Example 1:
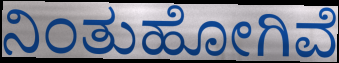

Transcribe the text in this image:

ನಿಂತುಹೋಗಿವೆ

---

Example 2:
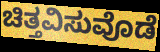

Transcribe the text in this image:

ಚಿತ್ತವಿಸುವೊಡೆ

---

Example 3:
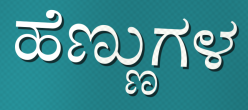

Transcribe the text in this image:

ಹೆಣ್ಣುಗಳ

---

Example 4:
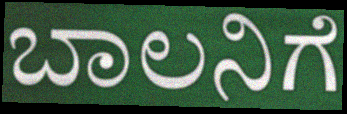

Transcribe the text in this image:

ಬಾಲನಿಗೆ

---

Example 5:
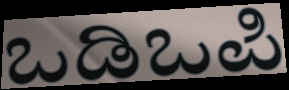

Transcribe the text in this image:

ಒಡಿಒಪಿ